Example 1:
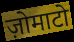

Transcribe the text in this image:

ज़ोमाटो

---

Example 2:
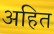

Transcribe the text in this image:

अहित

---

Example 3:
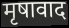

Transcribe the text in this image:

मृषावाद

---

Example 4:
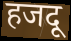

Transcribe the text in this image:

हजदू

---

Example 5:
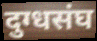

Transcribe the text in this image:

दुग्धसंघ